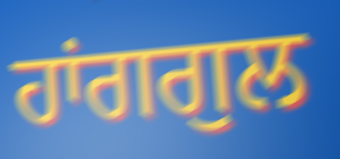
ਹਾਂਗਗੁਲ